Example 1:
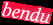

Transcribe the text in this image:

bendu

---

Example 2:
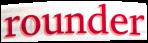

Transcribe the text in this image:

rounder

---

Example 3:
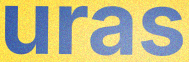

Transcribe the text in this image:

uras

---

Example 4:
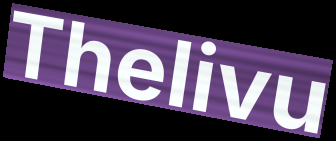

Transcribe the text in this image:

Thelivu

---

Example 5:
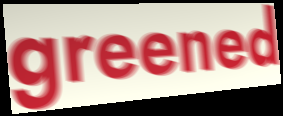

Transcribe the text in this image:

greened